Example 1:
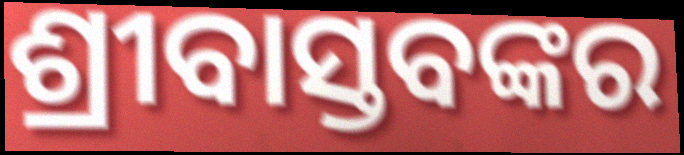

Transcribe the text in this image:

ଶ୍ରୀବାସ୍ତବଙ୍କର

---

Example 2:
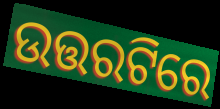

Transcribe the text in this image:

ଉତ୍ତରଟିରେ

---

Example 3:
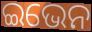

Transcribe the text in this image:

ଇଭେନ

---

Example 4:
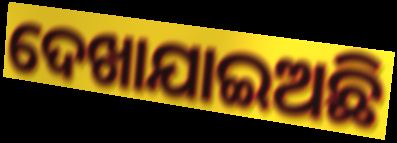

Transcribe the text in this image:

ଦେଖାଯାଇଅଛି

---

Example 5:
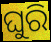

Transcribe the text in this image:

ଘୁରି